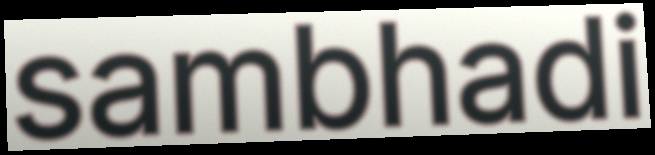
sambhadi